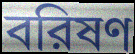
বরিষণ